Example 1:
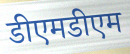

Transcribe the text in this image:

डीएमडीएम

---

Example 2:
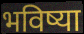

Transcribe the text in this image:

भविष्या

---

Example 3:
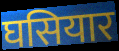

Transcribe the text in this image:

घसियार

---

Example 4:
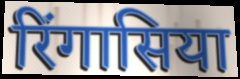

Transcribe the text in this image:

रिंगासिया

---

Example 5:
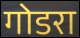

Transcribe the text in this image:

गोडरा